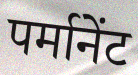
पर्मानेंट